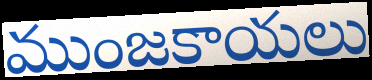
ముంజకాయలు